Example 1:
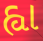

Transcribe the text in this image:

હ્વા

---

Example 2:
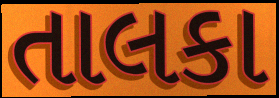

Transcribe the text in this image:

તાલકા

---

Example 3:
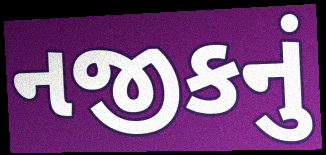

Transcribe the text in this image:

નજીકનું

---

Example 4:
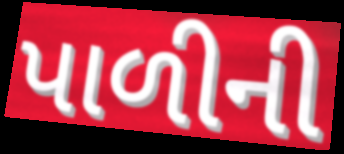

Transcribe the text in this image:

પાળીની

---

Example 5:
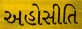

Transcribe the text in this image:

અહોસીતિ